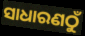
ସାଧାରଣଠୁଁ